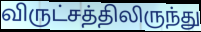
விருட்சத்திலிருந்து